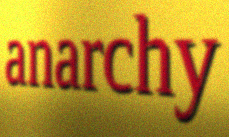
anarchy